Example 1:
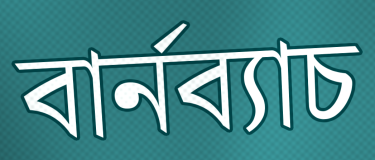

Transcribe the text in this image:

বার্নব্যাচ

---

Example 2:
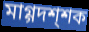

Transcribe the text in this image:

মাগ্গদশ্শক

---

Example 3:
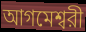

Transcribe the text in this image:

আগমেশ্বরী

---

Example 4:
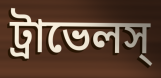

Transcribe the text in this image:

ট্রাভেলস্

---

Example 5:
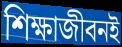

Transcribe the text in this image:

শিক্ষাজীবনই